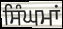
ਸਿੰਘਮਾਂ